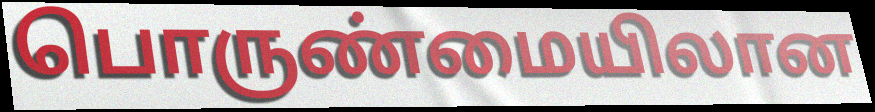
பொருண்மையிலான